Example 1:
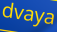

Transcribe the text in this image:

dvaya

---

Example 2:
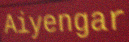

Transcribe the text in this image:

Aiyengar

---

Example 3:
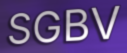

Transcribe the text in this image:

SGBV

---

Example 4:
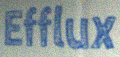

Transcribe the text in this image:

Efflux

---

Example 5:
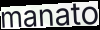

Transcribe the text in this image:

manato